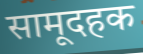
सामूदहक